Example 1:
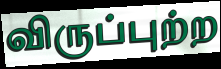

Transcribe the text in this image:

விருப்புற்ற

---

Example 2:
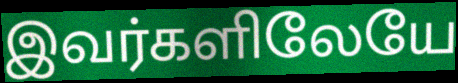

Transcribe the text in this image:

இவர்களிலேயே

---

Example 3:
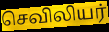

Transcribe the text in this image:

செவிலியர்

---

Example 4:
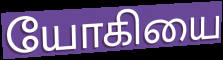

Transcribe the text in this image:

யோகியை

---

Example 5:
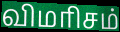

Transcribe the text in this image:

விமரிசம்